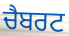
ਚੈਬਰਟ